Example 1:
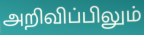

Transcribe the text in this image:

அறிவிப்பிலும்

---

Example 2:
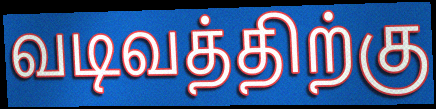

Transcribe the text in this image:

வடிவத்திற்கு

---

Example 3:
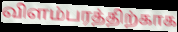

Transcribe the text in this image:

விளம்பரத்திற்காக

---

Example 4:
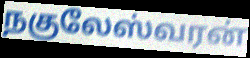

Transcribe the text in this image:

நகுலேஸ்வரன்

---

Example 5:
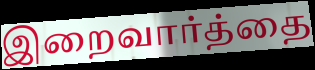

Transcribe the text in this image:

இறைவார்த்தை